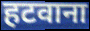
हटवाना